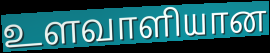
உளவாளியான